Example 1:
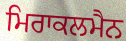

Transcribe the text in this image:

ਮਿਰਾਕਲਮੈਨ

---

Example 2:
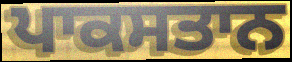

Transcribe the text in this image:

ਪਾਕਸਤਾਨ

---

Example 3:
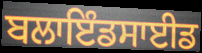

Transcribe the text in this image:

ਬਲਾਇੰਡਸਾਈਡ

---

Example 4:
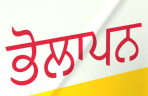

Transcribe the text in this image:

ਭੋਲਾਪਨ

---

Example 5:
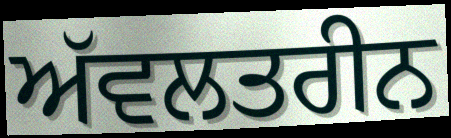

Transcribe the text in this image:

ਅੱਵਲਤਰੀਨ